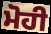
ਮੋਹੀ